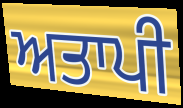
ਅਤਾਪੀ